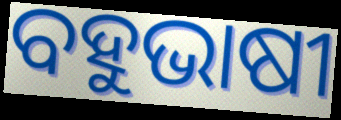
ବହୁଭାଷୀ